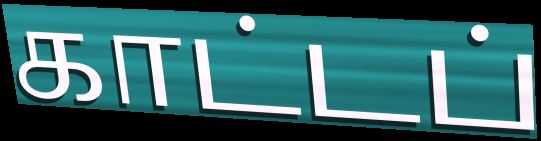
காட்டப்